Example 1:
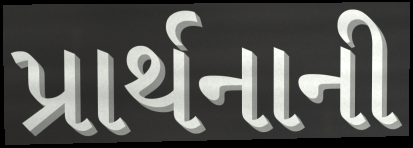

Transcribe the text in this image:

પ્રાર્થનાની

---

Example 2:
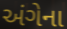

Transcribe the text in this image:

અંગેના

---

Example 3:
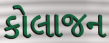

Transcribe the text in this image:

કોલાજન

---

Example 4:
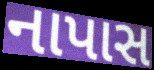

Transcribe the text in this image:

નાપાસ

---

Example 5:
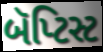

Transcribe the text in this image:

બૅપ્ટિસ્ટ